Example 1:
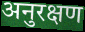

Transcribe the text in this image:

अनुरक्षण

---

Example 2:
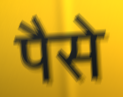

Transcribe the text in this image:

पैसे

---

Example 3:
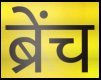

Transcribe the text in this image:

ब्रेंच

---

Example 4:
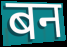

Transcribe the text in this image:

बन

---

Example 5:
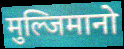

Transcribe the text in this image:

मुल्जिमानो